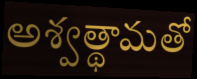
అశ్వత్థామతో